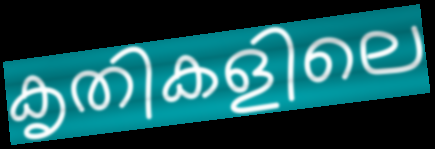
കൃതികളിലെ